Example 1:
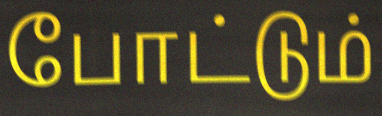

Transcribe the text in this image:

போட்டும்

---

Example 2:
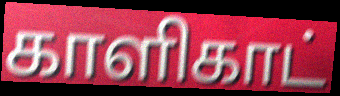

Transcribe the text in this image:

காளிகாட்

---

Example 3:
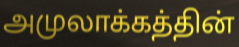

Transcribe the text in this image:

அமுலாக்கத்தின்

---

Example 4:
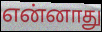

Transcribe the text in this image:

என்னாது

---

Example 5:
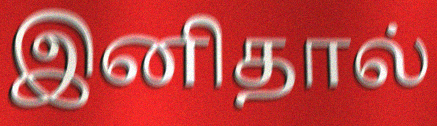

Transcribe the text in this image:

இனிதால்